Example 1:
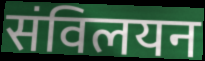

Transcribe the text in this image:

संविलयन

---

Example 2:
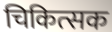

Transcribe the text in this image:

चिकित्‍सक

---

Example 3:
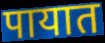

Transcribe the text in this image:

पायात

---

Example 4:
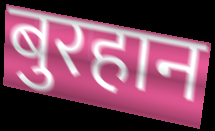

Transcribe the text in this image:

बुरहान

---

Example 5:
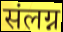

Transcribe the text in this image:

संलग्न